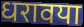
धरावया